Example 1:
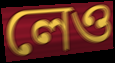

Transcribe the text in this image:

লেও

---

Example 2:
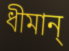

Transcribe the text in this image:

ধীমান্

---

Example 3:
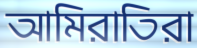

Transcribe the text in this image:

আমিরাতিরা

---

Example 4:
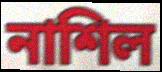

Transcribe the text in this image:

নাশিল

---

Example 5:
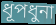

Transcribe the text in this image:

ধূপধুনা